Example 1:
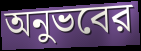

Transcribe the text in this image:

অনুভবের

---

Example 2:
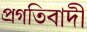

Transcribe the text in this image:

প্রগতিবাদী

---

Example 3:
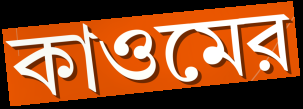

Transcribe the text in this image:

কাওমের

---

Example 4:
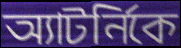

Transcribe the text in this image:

অ্যাটর্নিকে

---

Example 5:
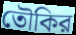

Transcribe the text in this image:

তৌকির